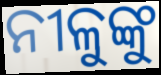
ନୀଳୁଙ୍କୁ